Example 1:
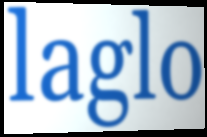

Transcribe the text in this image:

laglo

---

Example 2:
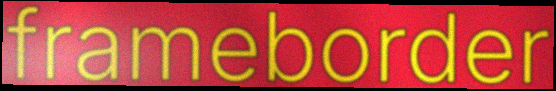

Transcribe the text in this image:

frameborder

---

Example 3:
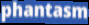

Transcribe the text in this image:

phantasm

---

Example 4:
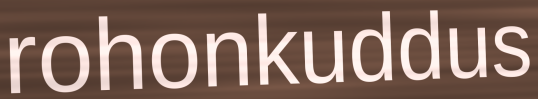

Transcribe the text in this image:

rohonkuddus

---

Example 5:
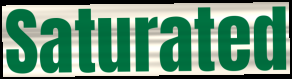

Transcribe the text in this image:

Saturated